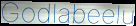
Godlabeelu